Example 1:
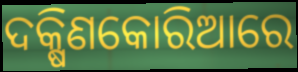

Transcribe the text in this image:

ଦକ୍ଷିଣକୋରିଆରେ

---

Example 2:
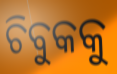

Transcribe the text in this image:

ଚିବୁକକୁ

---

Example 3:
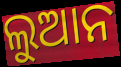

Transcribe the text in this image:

ଲୁଆନ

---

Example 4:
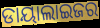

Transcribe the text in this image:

ଡାୟାଲାଇଜର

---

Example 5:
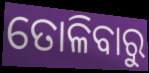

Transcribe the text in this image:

ତୋଳିବାରୁ